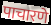
पाचारणे